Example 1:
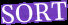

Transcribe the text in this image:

SORT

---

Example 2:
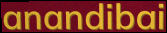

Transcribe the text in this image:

anandibai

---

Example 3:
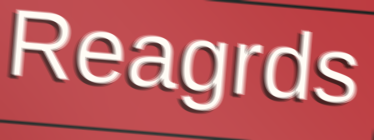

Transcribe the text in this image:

Reagrds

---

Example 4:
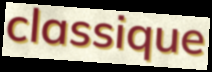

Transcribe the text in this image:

classique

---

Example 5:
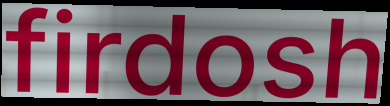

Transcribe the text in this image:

firdosh